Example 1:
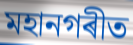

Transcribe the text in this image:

মহানগৰীত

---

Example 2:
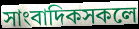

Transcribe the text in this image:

সাংবাদিকসকলে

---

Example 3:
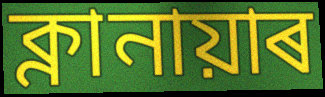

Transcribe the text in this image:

ক্নানায়াৰ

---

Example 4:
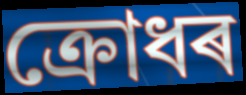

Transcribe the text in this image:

ক্ৰোধৰ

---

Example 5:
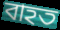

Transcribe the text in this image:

বাহত